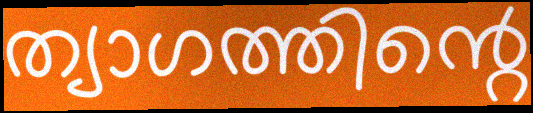
ത്യാഗത്തിന്റെ